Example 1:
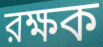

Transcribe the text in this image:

রক্ষক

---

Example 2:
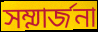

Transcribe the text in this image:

সম্মার্জনা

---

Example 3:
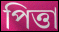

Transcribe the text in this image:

পিত্তা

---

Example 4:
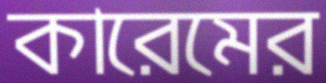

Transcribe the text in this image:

কারেমের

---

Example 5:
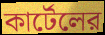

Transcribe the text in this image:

কার্টেলের